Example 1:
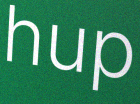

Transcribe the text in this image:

hup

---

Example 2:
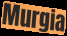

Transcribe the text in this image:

Murgia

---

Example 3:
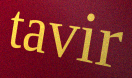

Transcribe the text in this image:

tavir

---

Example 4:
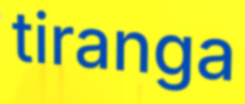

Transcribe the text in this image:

tiranga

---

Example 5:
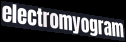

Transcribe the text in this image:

electromyogram